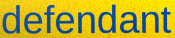
defendant